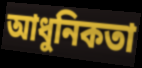
আধুনিকতা